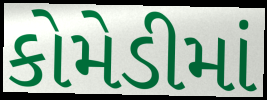
કોમેડીમાં